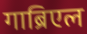
गाब्रिएल